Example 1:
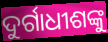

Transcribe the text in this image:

ଦୁର୍ଗାଧୀଶଙ୍କୁ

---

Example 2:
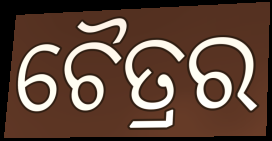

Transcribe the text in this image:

ଚୈତ୍ରର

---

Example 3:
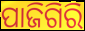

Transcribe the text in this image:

ପାଜିଗିରି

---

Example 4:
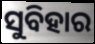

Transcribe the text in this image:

ସୁବିହାର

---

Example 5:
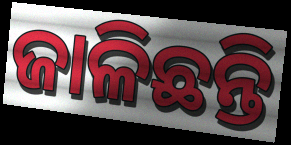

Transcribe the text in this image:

ଜାଳିଛନ୍ତି